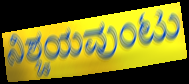
ನಿಶ್ಚಯವುಂಟು